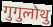
गुगुलोथु